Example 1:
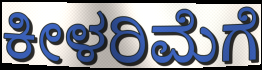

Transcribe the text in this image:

ಕೀಳರಿಮೆಗೆ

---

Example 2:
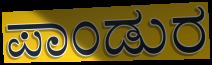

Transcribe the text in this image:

ಪಾಂಡುರ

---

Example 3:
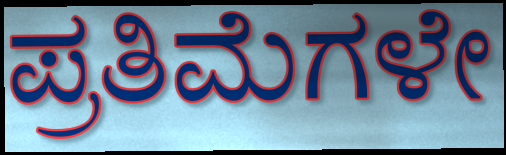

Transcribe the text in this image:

ಪ್ರತಿಮೆಗಳೇ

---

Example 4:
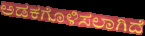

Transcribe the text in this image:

ಅಡಕಗೊಳಿಸಲಾಗಿದೆ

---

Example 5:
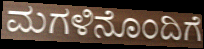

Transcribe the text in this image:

ಮಗಳಿನೊಂದಿಗೆ